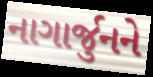
નાગાર્જુનને